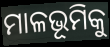
ମାଳଭୂମିକୁ